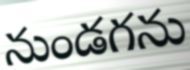
నుండగను